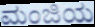
ಮಂಜಿಯ